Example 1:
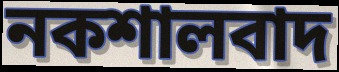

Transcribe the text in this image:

নকশালবাদ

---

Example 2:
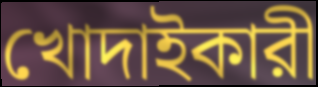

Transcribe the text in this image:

খোদাইকারী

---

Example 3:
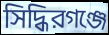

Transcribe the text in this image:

সিদ্ধিরগঞ্জে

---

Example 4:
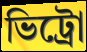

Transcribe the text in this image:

ভিট্রো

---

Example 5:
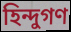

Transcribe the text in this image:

হিন্দুগণ